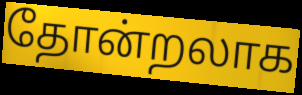
தோன்றலாக